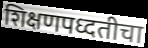
शिक्षणपध्दतीचा